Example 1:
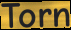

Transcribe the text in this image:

Torn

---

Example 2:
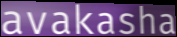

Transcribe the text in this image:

avakasha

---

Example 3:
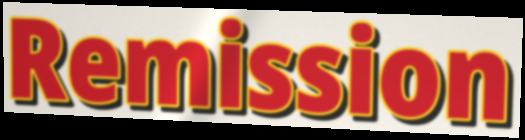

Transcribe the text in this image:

Remission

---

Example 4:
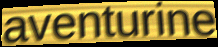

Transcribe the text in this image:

aventurine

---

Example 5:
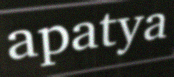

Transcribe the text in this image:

apatya